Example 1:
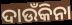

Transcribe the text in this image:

ଦାଉଁକିନା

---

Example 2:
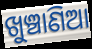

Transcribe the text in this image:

ଖୁଞ୍ଚାଣିଆ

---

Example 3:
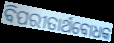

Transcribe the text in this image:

ବିପରୀତାର୍ଥବୋଧକ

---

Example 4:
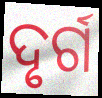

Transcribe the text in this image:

ଦୃର୍ଗ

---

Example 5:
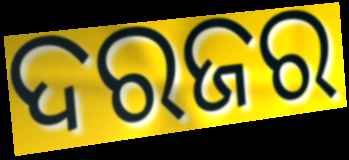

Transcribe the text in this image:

ଦରଜର